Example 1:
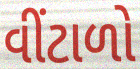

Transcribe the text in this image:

વીંટાળો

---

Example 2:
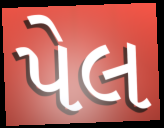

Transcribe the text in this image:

પેલ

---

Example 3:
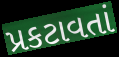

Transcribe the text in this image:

પ્રકટાવતાં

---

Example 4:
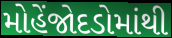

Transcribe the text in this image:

મોહેંજોદડોમાંથી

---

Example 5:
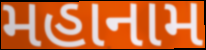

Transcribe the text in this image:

મહાનામ